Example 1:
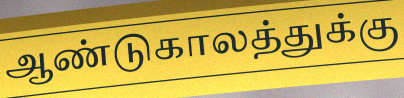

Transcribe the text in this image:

ஆண்டுகாலத்துக்கு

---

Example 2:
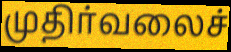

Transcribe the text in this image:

முதிர்வலைச்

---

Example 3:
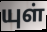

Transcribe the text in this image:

யுள்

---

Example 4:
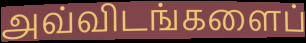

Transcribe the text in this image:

அவ்விடங்களைப்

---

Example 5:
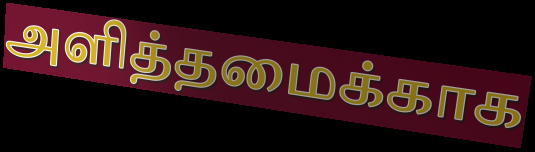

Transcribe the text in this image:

அளித்தமைக்காக